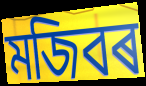
মজিবৰ